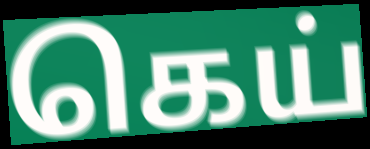
கெய்